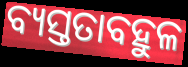
ବ୍ୟସ୍ତତାବହୁଳ